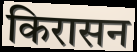
किरासन